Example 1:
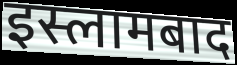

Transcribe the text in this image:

इस्लामबाद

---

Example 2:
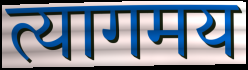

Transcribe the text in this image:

त्यागमय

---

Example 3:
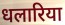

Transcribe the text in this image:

धलारिया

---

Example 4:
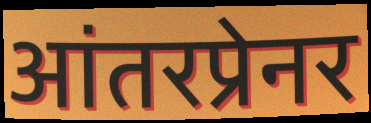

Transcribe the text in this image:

आंतरप्रेनर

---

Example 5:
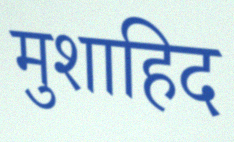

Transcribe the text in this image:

मुशाहिद